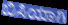
ಬಿಸಿಯಾಗಿ